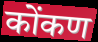
कोंकण